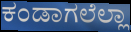
ಕಂಡಾಗಲೆಲ್ಲಾ